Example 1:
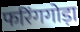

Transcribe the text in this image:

फरिंगगोड़ा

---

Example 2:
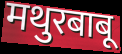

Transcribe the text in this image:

मथुरबाबू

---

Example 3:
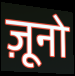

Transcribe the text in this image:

ज़ूनो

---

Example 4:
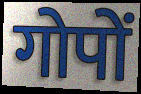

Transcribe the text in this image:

गोपों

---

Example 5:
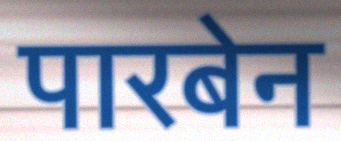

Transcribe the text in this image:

पारबेन